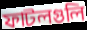
ফাটলগুলি